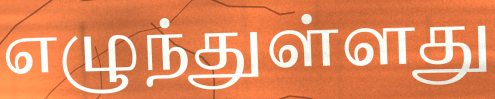
எழுந்துள்ளது